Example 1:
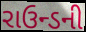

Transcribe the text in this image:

રાઉન્ડની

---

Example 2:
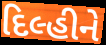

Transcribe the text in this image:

દિલ્હીને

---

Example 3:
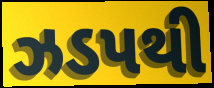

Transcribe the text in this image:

ઝડપથી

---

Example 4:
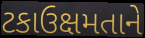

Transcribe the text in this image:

ટકાઉક્ષમતાને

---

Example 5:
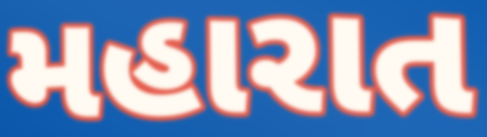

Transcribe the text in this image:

મહારાત